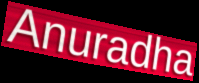
Anuradha